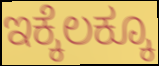
ಇಕ್ಕೆಲಕ್ಕೂ